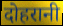
दोहरानी